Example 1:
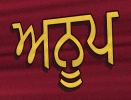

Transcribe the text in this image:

ਅਨੂਪ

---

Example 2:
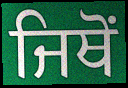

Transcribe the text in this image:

ਜਿਥੋਂ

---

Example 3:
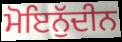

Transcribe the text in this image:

ਮੋਇਨੁੱਦੀਨ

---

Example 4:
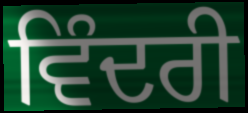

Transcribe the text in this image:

ਵਿੰਦਰੀ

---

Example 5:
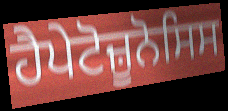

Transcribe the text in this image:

ਹੈਪੇਟੋਜ਼ੂਨੋਸਿਸ